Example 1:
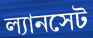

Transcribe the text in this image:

ল্যানসেট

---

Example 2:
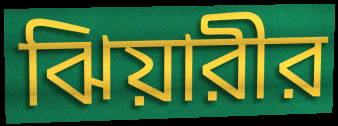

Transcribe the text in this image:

ঝিয়ারীর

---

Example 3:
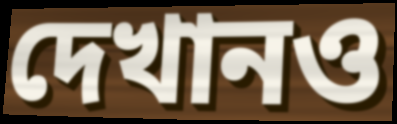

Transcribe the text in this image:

দেখানও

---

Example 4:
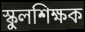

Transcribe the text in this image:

স্কুলশিক্ষক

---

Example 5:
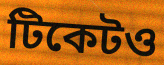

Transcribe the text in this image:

টিকেটও